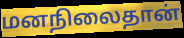
மனநிலைதான்